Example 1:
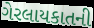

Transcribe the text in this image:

ગેરલાયકાતની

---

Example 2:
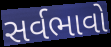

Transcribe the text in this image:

સર્વભાવો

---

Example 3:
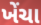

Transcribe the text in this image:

ખેંચા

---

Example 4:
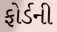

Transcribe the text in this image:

ફોર્ડની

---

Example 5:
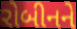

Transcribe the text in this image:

રોબીનને